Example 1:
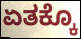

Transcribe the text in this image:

ಏತಕ್ಕೊ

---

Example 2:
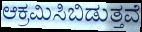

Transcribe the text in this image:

ಆಕ್ರಮಿಸಿಬಿಡುತ್ತವೆ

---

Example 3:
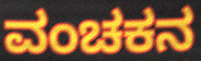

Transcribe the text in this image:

ವಂಚಕನ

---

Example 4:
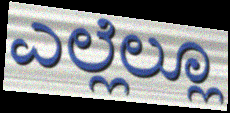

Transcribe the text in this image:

ಎಲ್ಲೆಲ್ಲೂ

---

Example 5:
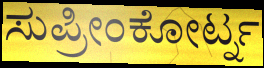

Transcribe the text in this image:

ಸುಪ್ರೀಂಕೋರ್ಟ್ನ